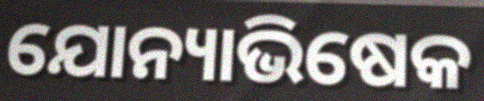
ଯୋନ୍ୟାଭିଷେକ